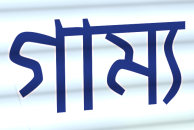
গাম্য